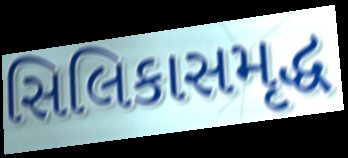
સિલિકાસમૃદ્ધ